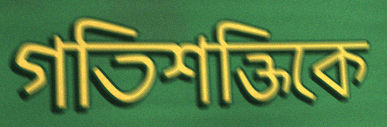
গতিশক্তিকে